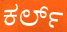
ಕರ್ಲ್